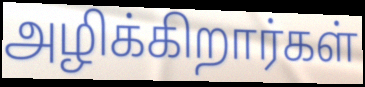
அழிக்கிறார்கள்